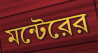
মন্টেরের